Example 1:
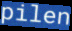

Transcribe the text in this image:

pilen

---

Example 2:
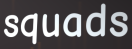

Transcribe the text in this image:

squads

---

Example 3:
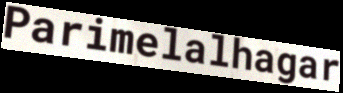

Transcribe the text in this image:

Parimelalhagar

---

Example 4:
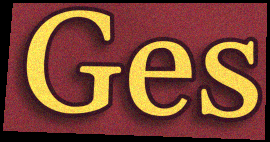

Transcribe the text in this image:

Ges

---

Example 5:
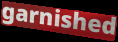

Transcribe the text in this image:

garnished